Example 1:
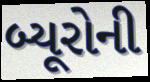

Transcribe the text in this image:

બ્યૂરોની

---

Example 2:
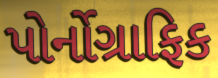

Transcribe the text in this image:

પોર્નોગ્રાફિક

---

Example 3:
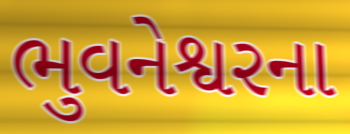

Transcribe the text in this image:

ભુવનેશ્વરના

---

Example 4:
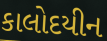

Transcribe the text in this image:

કાલોદયીન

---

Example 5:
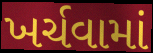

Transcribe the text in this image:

ખર્ચવામાં